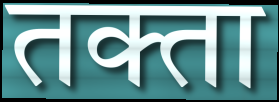
तक्ता